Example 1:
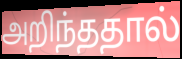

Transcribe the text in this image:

அறிந்ததால்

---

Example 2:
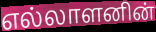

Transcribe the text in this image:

எல்லாளனின்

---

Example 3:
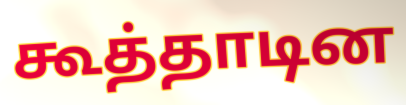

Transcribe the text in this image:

கூத்தாடின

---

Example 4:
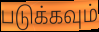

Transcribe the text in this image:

படுக்கவும்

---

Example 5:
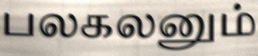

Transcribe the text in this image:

பலகலனும்